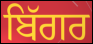
ਬਿੱਗਰ